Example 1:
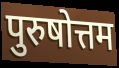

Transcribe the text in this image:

पुरुषोत्तम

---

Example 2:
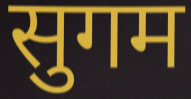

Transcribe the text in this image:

सुगम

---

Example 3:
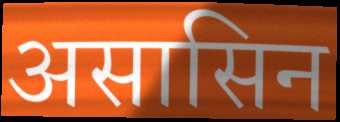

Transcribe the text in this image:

असासिन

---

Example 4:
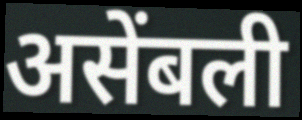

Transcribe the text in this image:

असेंबली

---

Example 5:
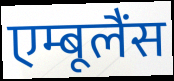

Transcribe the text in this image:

एम्बूलैंस